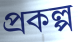
প্ৰকল্প